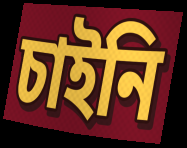
চাইনি